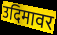
उदिमावर